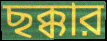
ছক্কার